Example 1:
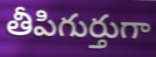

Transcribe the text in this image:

తీపిగుర్తుగా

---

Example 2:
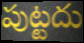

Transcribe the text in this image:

పుట్టదు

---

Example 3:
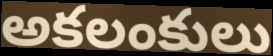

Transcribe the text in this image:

అకలంకులు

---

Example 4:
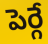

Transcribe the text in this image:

పెర్గే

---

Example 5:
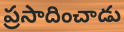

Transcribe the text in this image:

ప్రసాదించాడు